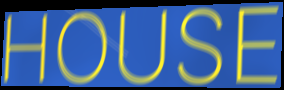
HOUSE